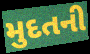
મુદતની